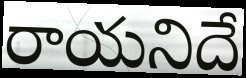
రాయనిదే